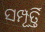
ସମ୍ପୂର୍ତ୍ତି